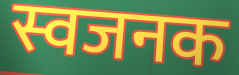
स्वजनक